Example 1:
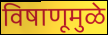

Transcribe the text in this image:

विषाणूमुळे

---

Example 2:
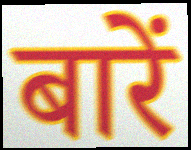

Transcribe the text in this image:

बारें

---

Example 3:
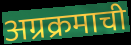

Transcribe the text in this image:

अग्रक्रमाची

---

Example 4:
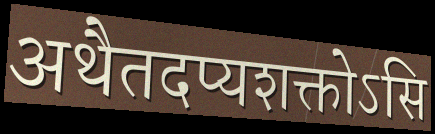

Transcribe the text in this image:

अथैतदप्यशक्तोऽसि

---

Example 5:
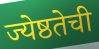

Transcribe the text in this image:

ज्येष्ठतेची